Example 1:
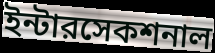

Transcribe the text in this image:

ইন্টারসেকশনাল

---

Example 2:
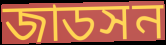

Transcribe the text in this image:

জাডসন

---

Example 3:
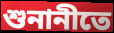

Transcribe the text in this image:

শুনানীতে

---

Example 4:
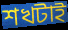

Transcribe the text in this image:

শখটাই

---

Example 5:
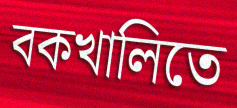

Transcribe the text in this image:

বকখালিতে